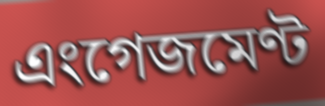
এংগেজমেণ্ট